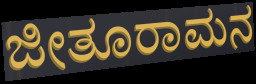
ಜೀತೂರಾಮನ